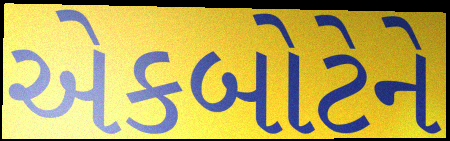
એકબોટેને